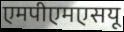
एमपीएमएसयू